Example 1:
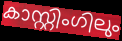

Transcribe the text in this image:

കാസ്റ്റിംഗിലും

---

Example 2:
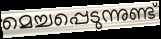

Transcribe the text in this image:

മെച്ചപ്പെടുന്നുണ്ട്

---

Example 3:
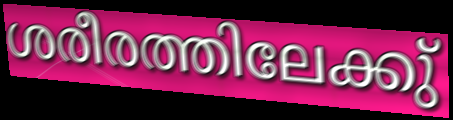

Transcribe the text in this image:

ശരീരത്തിലേക്കു്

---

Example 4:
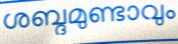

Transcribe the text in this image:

ശബ്ദമുണ്ടാവും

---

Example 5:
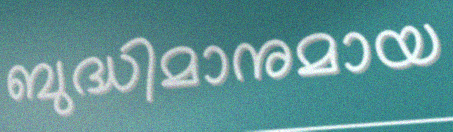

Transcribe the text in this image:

ബുദ്ധിമാനുമായ